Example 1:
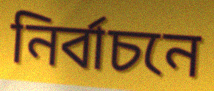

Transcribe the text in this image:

নির্বাচনে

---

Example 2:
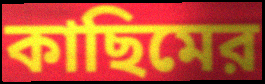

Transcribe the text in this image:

কাছিমের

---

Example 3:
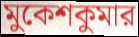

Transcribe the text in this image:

মুকেশকুমার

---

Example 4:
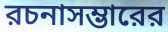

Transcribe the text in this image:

রচনাসম্ভারের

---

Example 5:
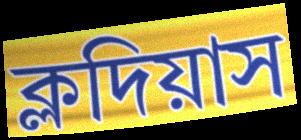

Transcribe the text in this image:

ক্লদিয়াস